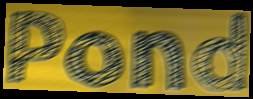
Pond